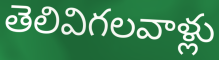
తెలివిగలవాళ్లు